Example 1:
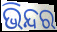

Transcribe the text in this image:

ଭିନ୍ଦର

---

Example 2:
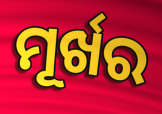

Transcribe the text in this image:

ମୂର୍ଖର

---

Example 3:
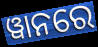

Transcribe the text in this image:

ୱାନରେ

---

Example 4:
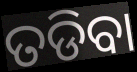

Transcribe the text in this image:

ତଡିବା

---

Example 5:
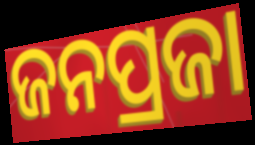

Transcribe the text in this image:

ଜନପ୍ରଜା